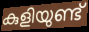
കുളിയുണ്ട്